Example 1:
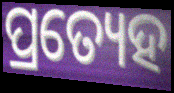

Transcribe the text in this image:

ପ୍ରତ୍ୟେହ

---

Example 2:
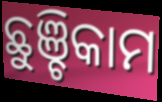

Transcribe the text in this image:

ଛୁଞ୍ଚିକାମ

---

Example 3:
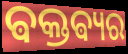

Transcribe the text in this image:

ଵକ୍ତଵ୍ୟର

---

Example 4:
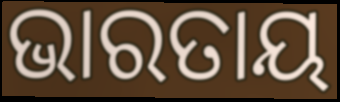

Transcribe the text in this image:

ଭାରତାୟ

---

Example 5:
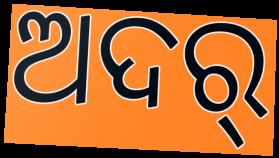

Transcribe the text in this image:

ଅଦର୍